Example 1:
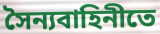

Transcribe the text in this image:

সৈন্যবাহিনীতে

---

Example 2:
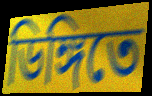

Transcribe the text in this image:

ডিঙ্গিতে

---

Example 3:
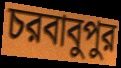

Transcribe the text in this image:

চরবাবুপুর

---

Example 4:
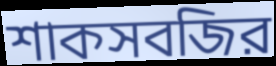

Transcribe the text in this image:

শাকসবজির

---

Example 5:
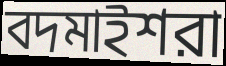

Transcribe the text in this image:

বদমাইশরা